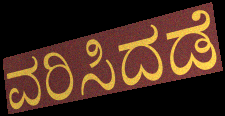
ವರಿಸಿದಡೆ